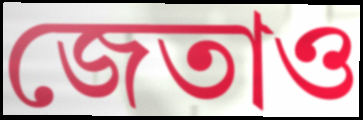
জেতাও